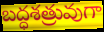
బద్ధశత్రువుగా